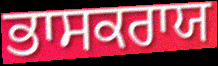
ਭਾਸਕਰਾਯ